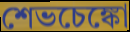
শেভচেঙ্কো